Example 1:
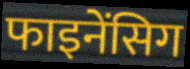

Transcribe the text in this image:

फाइनेंसिग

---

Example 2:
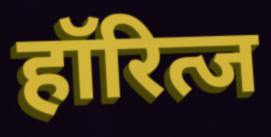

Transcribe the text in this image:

हॉरित्ज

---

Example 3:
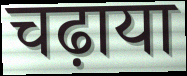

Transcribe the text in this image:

चढ़ाया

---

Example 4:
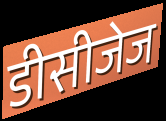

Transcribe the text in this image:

डीसीजेज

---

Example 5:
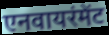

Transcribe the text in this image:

एनवायरंमेंट